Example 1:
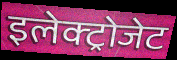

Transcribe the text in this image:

इलेक्ट्रोजेट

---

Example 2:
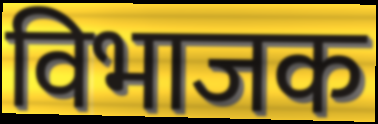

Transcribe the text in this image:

विभाजक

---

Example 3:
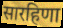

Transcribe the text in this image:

सारहिणा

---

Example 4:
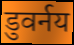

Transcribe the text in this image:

डुवर्नय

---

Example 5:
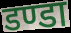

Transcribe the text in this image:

डण्डा